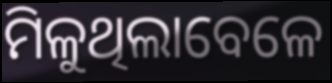
ମିଳୁଥିଲାବେଳେ